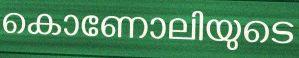
കൊണോലിയുടെ